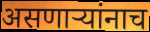
असणार्‍यांनाच